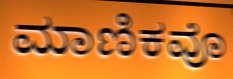
ಮಾಣಿಕವೊ